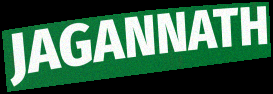
JAGANNATH